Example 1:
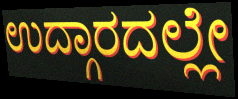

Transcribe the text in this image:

ಉದ್ಗಾರದಲ್ಲೇ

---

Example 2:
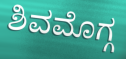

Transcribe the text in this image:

ಶಿವಮೊಗ್ಗ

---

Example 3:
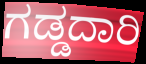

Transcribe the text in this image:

ಗಡ್ಡದಾರಿ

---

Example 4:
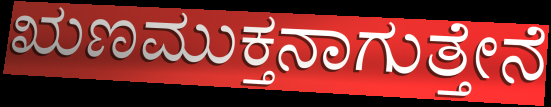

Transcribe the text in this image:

ಋಣಮುಕ್ತನಾಗುತ್ತೇನೆ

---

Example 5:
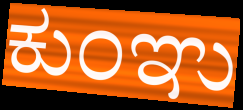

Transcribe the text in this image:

ಕುಂಞು